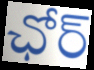
ఛోర్